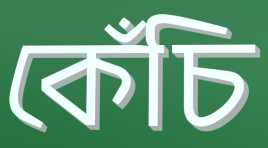
কেঁচি